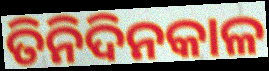
ତିନିଦିନକାଳ